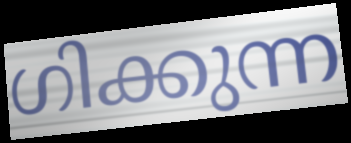
ഗിക്കുന്ന